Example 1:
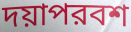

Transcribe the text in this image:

দয়াপরবশ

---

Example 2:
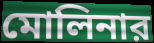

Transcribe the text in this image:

মোলিনার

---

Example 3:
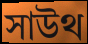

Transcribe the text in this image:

সাউথ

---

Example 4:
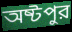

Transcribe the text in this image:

অষ্টপুর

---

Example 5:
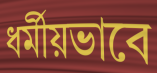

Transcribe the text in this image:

ধর্মীয়ভাবে